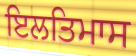
ਇਲਤਿਮਾਸ